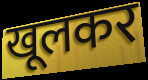
खूलकर